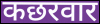
कछरवार